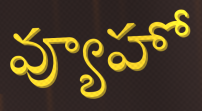
వ్యూహో